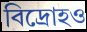
বিদ্রোহও